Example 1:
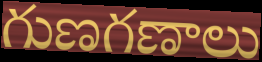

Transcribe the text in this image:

గుణగణాలు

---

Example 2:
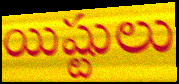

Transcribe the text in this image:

యిష్టులు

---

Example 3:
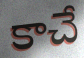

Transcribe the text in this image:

కాచే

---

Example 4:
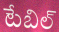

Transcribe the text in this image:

టేబిల్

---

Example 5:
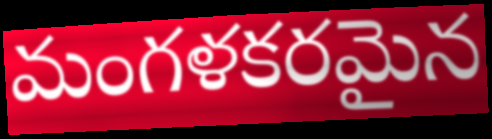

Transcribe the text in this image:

మంగళకరమైన